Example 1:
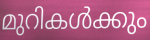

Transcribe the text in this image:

മുറികൾക്കും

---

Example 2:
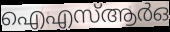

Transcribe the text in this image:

ഐഎസ്ആർഒ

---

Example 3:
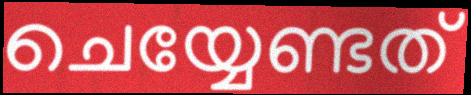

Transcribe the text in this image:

ചെയ്യേണ്ടത്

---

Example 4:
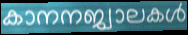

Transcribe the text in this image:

കാനനജ്വാലകൾ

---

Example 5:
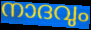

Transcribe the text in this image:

നാദവും